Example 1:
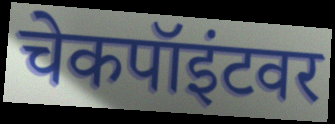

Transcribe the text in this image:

चेकपॉइंटवर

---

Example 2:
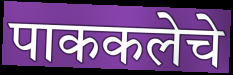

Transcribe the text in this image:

पाककलेचे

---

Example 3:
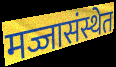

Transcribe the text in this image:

मज्जासंस्थेत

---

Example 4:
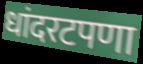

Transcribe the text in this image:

धांदरटपणा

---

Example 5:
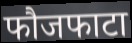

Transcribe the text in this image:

फौजफाटा